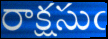
రాక్షసుఁ